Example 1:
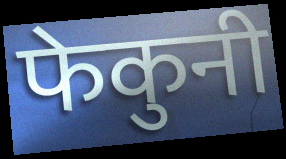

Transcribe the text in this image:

फेकुनी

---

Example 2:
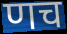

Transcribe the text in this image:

णच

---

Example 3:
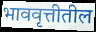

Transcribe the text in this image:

भाववृत्तीतील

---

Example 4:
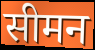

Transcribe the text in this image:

सीमन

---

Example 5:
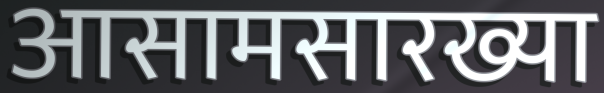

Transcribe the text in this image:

आसामसारख्या